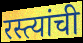
रस्त्यांची